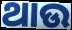
ଥାଉ